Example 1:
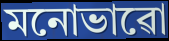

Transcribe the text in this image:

মনোভাৱো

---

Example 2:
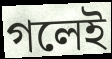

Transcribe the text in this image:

গলেই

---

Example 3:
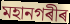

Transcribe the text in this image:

মহানগৰীৰ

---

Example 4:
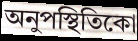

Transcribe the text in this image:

অনুপস্থিতিকো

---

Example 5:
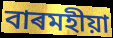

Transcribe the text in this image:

বাৰমহীয়া